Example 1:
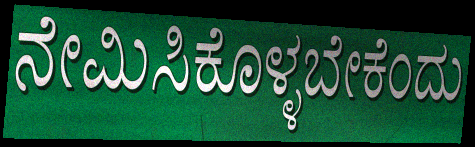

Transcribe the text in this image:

ನೇಮಿಸಿಕೊಳ್ಳಬೇಕೆಂದು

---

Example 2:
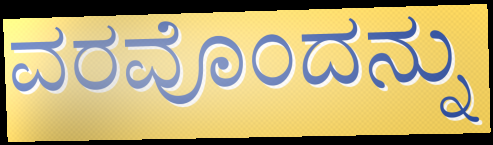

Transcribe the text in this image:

ವರವೊಂದನ್ನು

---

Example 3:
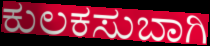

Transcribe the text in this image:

ಕುಲಕಸುಬಾಗಿ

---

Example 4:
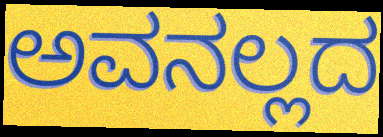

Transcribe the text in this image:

ಅವನಲ್ಲದ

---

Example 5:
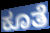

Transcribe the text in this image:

ಕೂತೆ